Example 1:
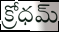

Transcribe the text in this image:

క్రోధమ్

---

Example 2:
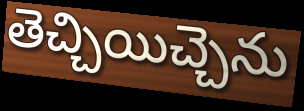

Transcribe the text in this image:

తెచ్చియిచ్చెను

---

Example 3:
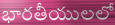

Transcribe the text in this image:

భారతీయులలో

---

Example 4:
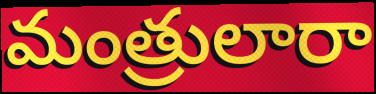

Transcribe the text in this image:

మంత్రులారా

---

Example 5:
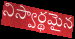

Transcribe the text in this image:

నిస్వార్థమైన